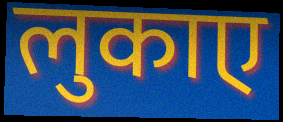
लुकाए